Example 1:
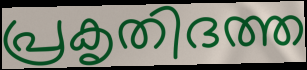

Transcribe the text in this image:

പ്രകൃതിദത്ത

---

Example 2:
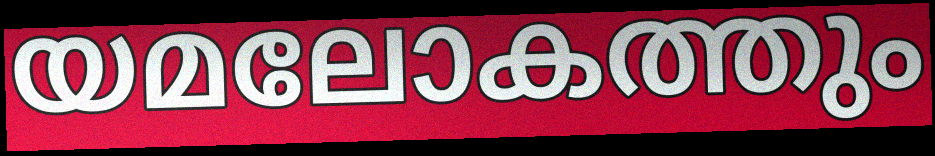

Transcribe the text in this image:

യമലോകത്തും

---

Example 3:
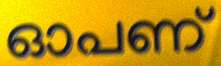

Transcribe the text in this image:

ഓപണ്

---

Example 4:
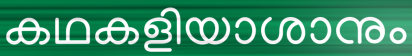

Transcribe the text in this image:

കഥകളിയാശാനും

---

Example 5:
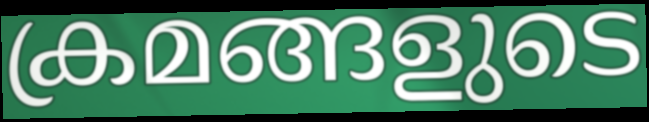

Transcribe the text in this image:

ക്രമങ്ങളുടെ